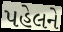
પહેલને